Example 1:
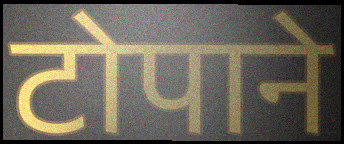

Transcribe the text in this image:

टोपाने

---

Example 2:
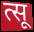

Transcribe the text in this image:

त्सू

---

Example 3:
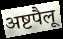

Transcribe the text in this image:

अष्टपैलू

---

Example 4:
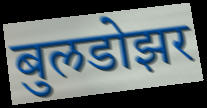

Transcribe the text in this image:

बुलडोझर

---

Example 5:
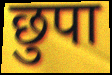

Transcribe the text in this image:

छुपा